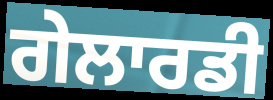
ਗੇਲਾਰਡੀ